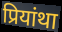
प्रियांथा